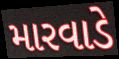
મારવાડે